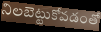
నిలబెట్టుకోవడంతో